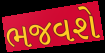
ભજવશે